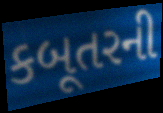
કબૂતરની